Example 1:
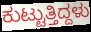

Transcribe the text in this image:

ಕುಟ್ಟುತ್ತಿದ್ದಳು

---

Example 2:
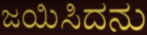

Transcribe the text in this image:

ಜಯಿಸಿದನು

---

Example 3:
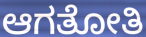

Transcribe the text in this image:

ಆಗತೋತಿ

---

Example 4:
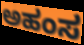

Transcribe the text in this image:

ಅಹಂಸ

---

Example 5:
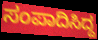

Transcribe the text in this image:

ಸಂಪಾದಿಸಿದ್ದ